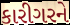
કારીગરને